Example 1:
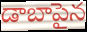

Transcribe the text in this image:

డాబాపైన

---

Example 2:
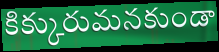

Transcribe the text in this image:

కిక్కురుమనకుండా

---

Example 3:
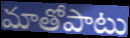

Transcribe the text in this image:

మాతోపాటు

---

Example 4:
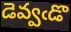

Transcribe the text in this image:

డెవ్వఁడొ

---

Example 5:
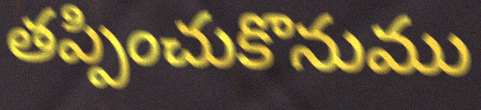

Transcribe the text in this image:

తప్పించుకొనుము